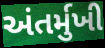
અંતર્મુખી